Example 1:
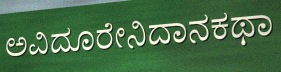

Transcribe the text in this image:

ಅವಿದೂರೇನಿದಾನಕಥಾ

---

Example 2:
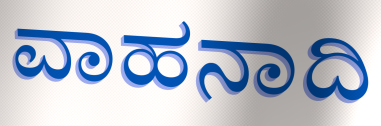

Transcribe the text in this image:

ವಾಹನಾದಿ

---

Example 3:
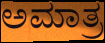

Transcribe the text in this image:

ಅಮಾತ್ರ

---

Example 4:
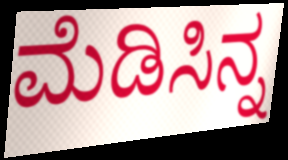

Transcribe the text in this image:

ಮೆಡಿಸಿನ್ನ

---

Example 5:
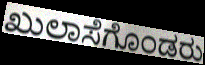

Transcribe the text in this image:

ಖುಲಾಸೆಗೊಂಡರು